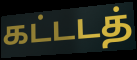
கட்டடத்